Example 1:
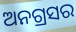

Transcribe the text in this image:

ଅନଗ୍ରସର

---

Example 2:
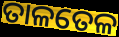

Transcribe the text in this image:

ତାଳତେଳ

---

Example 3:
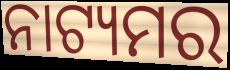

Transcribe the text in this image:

ନାଟ୍ୟମର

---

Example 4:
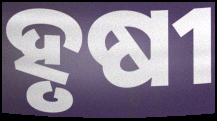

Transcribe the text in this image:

ହୃଷୀ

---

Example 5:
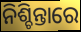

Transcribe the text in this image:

ନିଶ୍ଚିନ୍ତାରେ